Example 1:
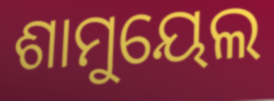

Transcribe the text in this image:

ଶାମୁୟେଲ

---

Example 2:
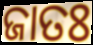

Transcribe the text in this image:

ଜାତଃ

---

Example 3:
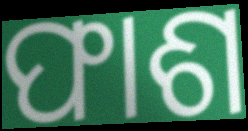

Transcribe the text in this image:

ଫାଶ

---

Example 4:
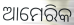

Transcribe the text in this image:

ଆମେରିକ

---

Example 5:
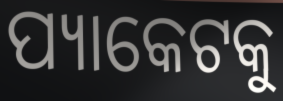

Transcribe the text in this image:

ପ୍ୟାକେଟକୁ